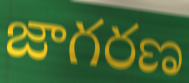
జాగరణ